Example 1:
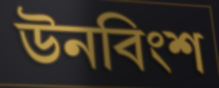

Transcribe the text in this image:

উনবিংশ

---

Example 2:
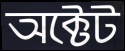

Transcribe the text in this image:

অক্টেট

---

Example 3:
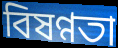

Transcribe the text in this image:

বিষণ্ণতা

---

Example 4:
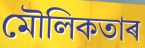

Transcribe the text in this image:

মৌলিকতাৰ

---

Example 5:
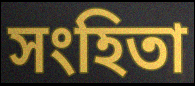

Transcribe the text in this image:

সংহিতা